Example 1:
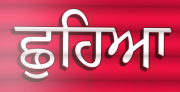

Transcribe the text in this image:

ਛੁਹਿਆ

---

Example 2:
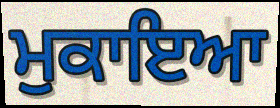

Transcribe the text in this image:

ਮੁਕਾਇਆ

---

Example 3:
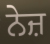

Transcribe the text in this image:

ਨੇਜ਼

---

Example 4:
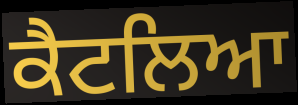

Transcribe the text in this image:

ਕੈਟਲਿਆ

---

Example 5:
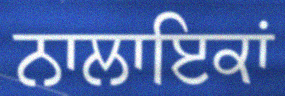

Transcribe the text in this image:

ਨਾਲਾਇਕਾਂ